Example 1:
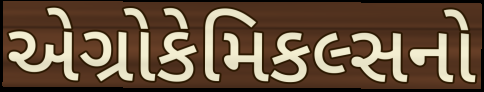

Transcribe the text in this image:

એગ્રોકેમિકલ્સનો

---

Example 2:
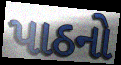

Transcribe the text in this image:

પાઠનો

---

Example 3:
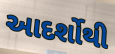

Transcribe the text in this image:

આદર્શોથી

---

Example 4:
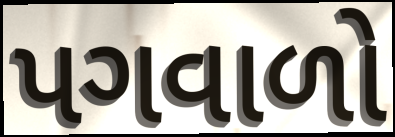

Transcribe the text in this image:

પગવાળો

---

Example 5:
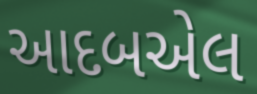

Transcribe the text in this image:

આદબએલ